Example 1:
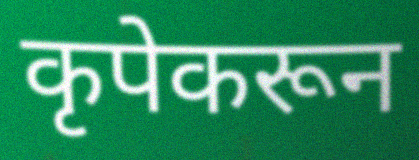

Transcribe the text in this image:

कृपेकरून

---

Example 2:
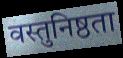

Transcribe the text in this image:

वस्तुनिष्ठता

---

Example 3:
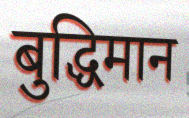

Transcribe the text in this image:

बुद्धिमान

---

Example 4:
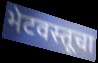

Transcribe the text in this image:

भेटवस्तूचा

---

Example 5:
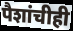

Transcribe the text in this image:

पैशांचीही